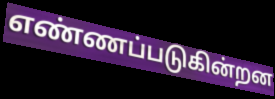
எண்ணப்படுகின்றன